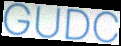
GUDC